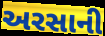
અરસાની